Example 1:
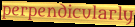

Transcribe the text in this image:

perpendicularly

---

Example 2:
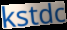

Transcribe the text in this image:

kstdc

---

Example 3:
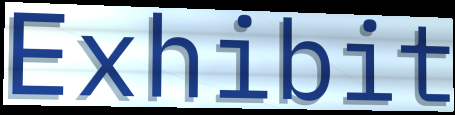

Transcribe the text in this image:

Exhibit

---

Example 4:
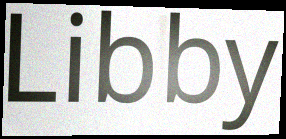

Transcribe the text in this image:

Libby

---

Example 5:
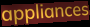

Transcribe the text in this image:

appliances